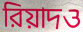
রিয়াদও